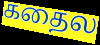
கதைல